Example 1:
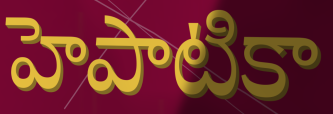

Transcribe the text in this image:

హెపాటికా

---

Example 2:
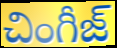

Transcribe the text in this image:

చింగీజ్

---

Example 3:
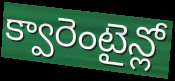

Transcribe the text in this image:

క్వారెంటైన్లో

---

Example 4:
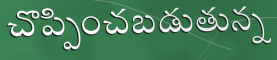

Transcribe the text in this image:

చొప్పించబడుతున్న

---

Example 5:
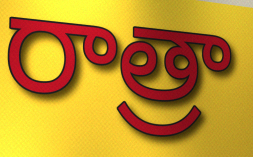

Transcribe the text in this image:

రాత్రా